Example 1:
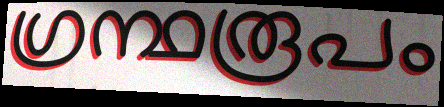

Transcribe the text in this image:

ഗ്രന്ഥരൂപം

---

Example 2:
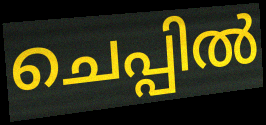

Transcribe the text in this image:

ചെപ്പിൽ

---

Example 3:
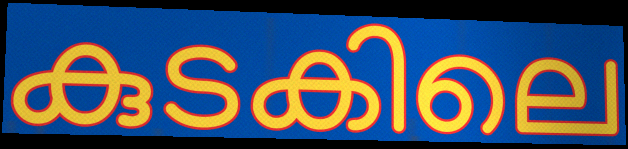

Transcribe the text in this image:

കുടകിലെ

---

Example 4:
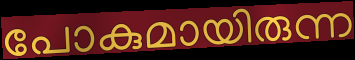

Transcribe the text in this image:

പോകുമായിരുന്ന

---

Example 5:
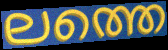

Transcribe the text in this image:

ലത്തെ